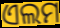
ଏଲମ